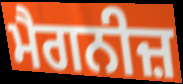
ਮੈਗਨੀਜ਼